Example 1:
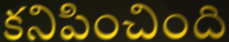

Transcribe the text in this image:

కనిపించింది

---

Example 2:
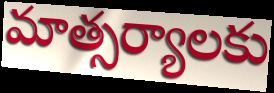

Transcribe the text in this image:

మాత్సర్యాలకు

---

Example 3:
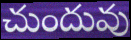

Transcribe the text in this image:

చుందువు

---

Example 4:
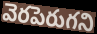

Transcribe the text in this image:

వెరపెరుగని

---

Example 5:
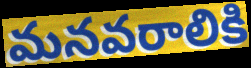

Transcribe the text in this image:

మనవరాలికి